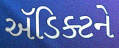
ઍડિક્ટને